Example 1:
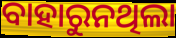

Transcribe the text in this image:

ବାହାରୁନଥିଲା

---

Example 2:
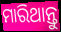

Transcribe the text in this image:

ମାରିଥାନ୍ତୁ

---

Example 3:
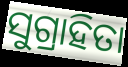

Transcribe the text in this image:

ସୁଗ୍ରାହିତା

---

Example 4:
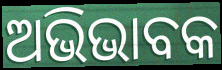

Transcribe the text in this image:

ଅଭିଭାବକ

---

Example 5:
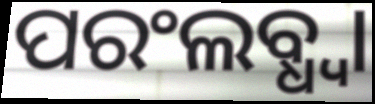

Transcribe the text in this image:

ପରଂଲବ୍ଧ୍ଵା